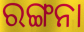
ରଙ୍ଗନା